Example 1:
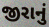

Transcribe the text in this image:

જીરાનું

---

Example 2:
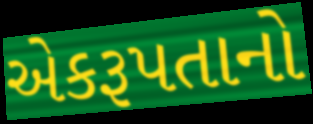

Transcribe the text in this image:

એકરૂપતાનો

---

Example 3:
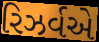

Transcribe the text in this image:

રિઝર્વએ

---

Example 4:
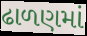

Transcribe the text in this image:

ઢાળણમાં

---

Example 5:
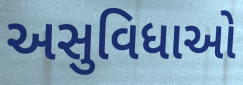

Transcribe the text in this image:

અસુવિધાઓ